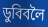
ডুবিবলৈ